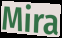
Mira